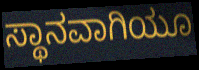
ಸ್ಥಾನವಾಗಿಯೂ